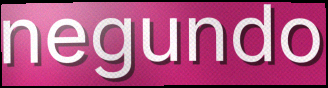
negundo